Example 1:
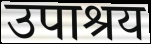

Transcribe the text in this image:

उपाश्रय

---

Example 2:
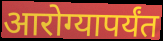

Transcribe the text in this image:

आरोग्यापर्यंत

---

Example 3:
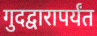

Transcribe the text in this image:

गुदद्वारापर्यंत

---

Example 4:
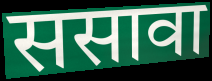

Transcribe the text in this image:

ससावा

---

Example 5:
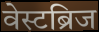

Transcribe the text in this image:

वेस्टब्रिज